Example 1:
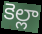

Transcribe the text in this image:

కెల్లా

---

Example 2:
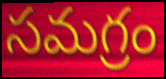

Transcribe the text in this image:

సమగ్రం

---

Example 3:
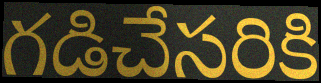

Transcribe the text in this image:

గడిచేసరికి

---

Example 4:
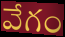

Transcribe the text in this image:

వేగం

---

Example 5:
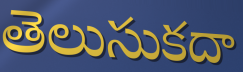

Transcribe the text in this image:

తెలుసుకదా